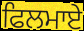
ਫਿਲਮਾਏ